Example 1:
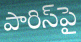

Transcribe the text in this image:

పారిస్‌పై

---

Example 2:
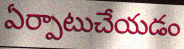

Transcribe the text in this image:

ఏర్పాటుచేయడం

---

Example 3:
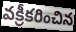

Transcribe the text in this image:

వక్రీకరించిన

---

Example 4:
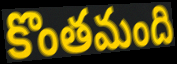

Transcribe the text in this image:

కొంతమంది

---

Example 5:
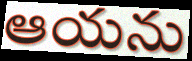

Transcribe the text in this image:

ఆయను